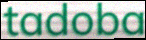
tadoba